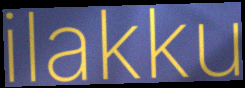
ilakku